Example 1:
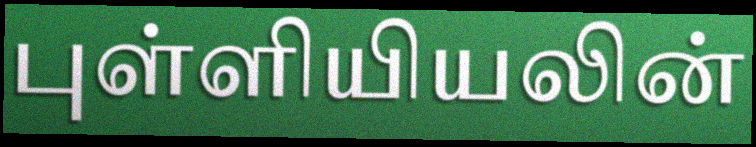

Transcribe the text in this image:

புள்ளியியலின்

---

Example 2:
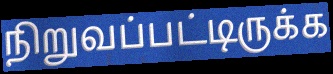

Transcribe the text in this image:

நிறுவப்பட்டிருக்க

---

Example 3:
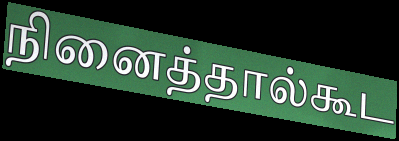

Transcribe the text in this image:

நினைத்தால்கூட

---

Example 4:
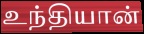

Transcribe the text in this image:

உந்தியான்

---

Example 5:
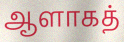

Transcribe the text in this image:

ஆளாகத்